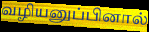
வழியனுப்பினால்